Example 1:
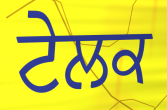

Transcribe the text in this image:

ਟੇਲਕ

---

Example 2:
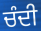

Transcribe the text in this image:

ਚੰਦੀ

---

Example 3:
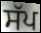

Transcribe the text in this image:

ਸੱਪ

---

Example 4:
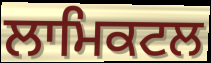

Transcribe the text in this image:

ਲਾਮਿਕਟਲ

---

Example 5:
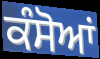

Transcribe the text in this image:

ਕੰਸੋਆਂ